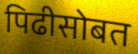
पिढीसोबत